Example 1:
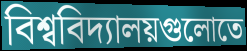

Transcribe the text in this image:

বিশ্ববিদ্যালয়গুলোতে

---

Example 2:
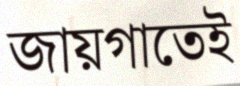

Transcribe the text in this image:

জায়গাতেই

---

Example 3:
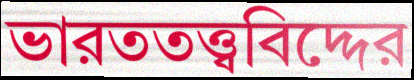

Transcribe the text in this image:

ভারততত্ত্ববিদ্দের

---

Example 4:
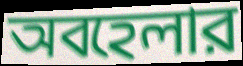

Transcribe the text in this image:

অবহেলার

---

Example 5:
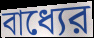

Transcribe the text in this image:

বাধ্যের